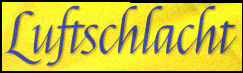
Luftschlacht